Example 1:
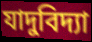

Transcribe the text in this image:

যাদুবিদ্যা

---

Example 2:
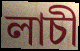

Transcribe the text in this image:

লাচী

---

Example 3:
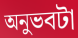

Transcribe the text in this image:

অনুভবটা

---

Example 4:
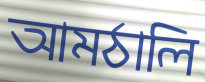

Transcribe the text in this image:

আমঠালি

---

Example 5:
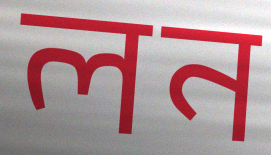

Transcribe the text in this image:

লন